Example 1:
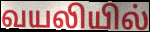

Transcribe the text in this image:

வயலியில்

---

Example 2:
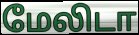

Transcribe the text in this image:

மேலிடா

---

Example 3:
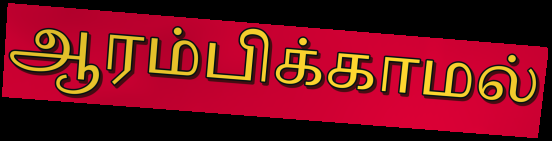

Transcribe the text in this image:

ஆரம்பிக்காமல்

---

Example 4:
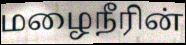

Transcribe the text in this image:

மழைநீரின்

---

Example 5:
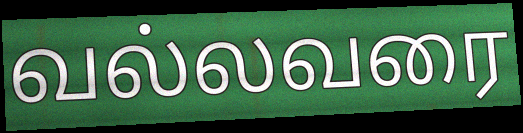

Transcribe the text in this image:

வல்லவரை